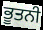
ਭੂਤਨੀ